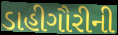
ડાહીગૌરીની